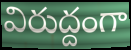
విరుద్దంగా